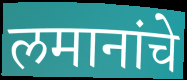
लमानांचे